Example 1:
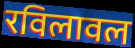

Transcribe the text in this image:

रविलावल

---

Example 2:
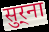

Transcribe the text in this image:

सुर्ना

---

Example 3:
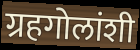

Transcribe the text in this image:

ग्रहगोलांशी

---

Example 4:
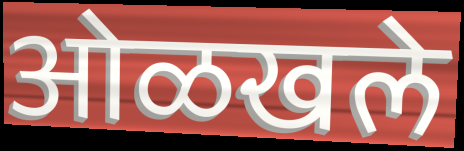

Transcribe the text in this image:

ओळखले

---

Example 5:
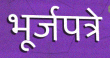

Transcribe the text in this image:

भूर्जपत्रे